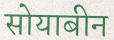
सोयाबीन